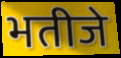
भतीजे